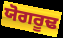
ਯੋਗਰੂਢ